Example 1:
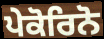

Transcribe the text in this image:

ਪੇਕੋਰਿਨੋ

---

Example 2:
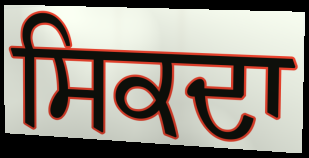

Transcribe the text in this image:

ਸਿਕਦਾ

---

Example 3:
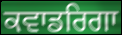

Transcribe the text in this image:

ਕਵਾਡਰਿਗਾ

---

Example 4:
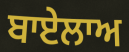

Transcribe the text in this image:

ਬਾਏਲਾਅ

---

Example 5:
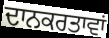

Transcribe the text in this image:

ਦਾਨਕਰਤਾਵਾਂ